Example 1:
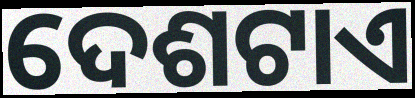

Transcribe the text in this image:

ଦେଶଟାଏ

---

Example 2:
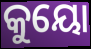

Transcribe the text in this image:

କୁୟୋ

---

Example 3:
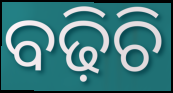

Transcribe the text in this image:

ବଢ଼ିଚି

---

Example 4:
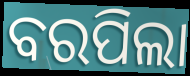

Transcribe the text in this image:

ବରପିଲା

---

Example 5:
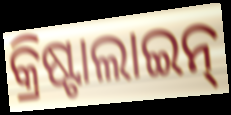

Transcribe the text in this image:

କ୍ରିଷ୍ଟାଲାଇନ୍